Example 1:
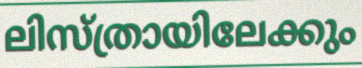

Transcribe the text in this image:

ലിസ്ത്രായിലേക്കും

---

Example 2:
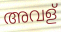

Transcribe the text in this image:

അവള്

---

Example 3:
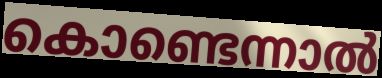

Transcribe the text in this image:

കൊണ്ടെന്നാൽ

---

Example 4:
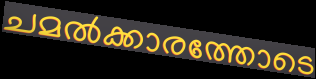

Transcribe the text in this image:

ചമൽക്കാരത്തോടെ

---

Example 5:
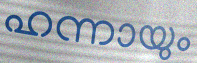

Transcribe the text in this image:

ഹന്നായും